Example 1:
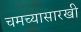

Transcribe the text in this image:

चमच्यासारखी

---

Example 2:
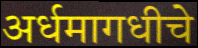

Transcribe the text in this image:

अर्धमागधीचे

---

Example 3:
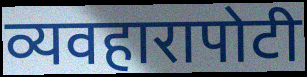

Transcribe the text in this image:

व्यवहारापोटी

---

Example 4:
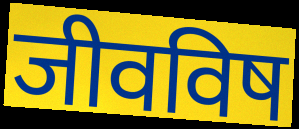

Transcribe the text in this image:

जीवविष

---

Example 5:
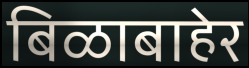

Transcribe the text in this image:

बिळाबाहेर